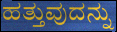
ಹತ್ತುವುದನ್ನು